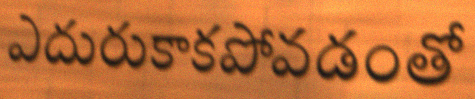
ఎదురుకాకపోవడంతో